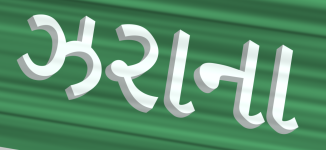
ઝરાના